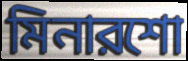
মিনারশো